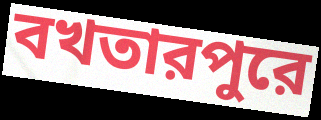
বখতারপুরে